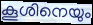
കൂശിനെയും